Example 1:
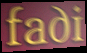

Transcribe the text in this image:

fadi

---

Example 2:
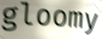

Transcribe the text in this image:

gloomy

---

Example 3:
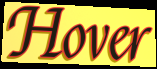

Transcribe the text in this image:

Hover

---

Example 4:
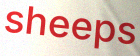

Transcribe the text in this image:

sheeps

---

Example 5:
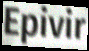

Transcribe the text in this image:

Epivir